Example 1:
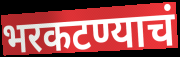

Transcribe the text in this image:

भरकटण्याचं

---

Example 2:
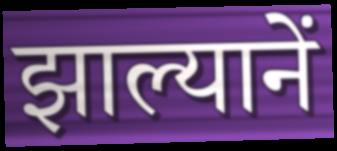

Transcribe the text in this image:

झाल्यानें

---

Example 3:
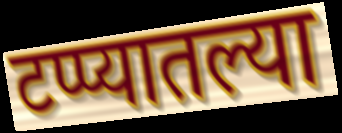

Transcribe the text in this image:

टप्प्यातल्या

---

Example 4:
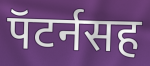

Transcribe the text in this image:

पॅटर्नसह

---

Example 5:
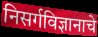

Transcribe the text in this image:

निसर्गविज्ञानाचे